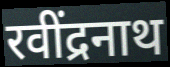
रवींद्रनाथ